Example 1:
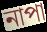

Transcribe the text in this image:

নাপা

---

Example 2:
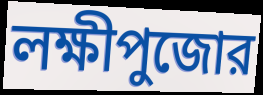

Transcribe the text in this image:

লক্ষীপুজোর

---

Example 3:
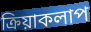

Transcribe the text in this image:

ক্রিয়াকলাপ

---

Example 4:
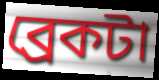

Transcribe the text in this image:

ব্রেকটা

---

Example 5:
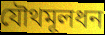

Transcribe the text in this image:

যৌথমূলধন